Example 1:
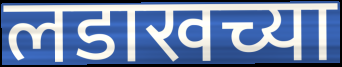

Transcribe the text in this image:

लडाखच्या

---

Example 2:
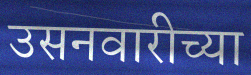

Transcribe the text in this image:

उसनवारीच्या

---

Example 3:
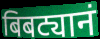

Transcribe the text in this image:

बिबट्यानं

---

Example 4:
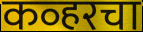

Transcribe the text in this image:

कव्हरचा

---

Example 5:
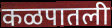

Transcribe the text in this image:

कळपातली